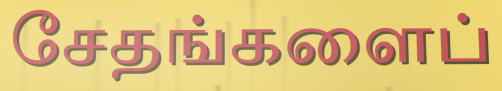
சேதங்களைப்